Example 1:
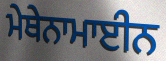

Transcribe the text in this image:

ਮੇਥੇਨਾਮਾਈਨ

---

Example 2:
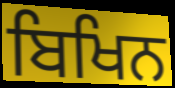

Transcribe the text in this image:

ਬਿਖਿਨ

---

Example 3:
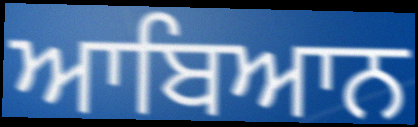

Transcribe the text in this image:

ਆਬਿਆਨ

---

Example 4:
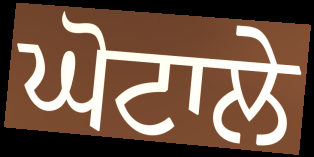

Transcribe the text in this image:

ਘੋਟਾਲੇ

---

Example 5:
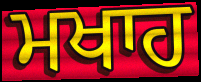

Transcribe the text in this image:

ਮਖਾਹ